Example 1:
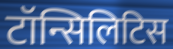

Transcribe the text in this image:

टॉन्सिलिटिस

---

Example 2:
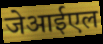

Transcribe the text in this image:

जेआईएल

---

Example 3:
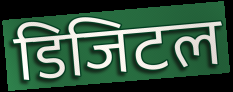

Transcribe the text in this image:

डिजिटल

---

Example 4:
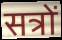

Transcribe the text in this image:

सत्रों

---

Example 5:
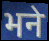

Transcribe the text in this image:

भने